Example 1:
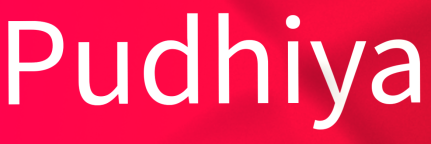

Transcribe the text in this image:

Pudhiya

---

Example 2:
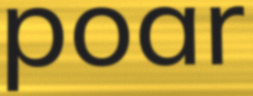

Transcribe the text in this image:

poar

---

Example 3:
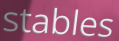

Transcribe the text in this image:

stables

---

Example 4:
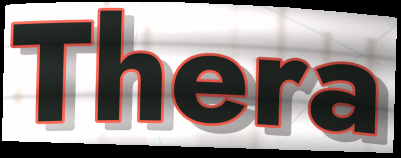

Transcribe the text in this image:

Thera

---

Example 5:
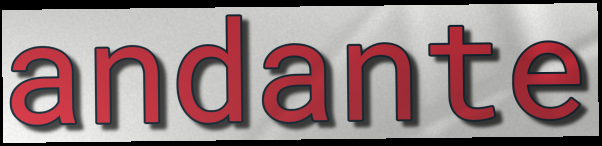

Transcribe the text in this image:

andante